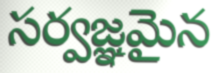
సర్వజ్ఞమైన